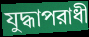
যুদ্ধাপরাধী